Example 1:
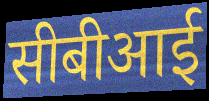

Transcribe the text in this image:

सीबीआई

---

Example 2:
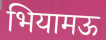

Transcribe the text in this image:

भियामऊ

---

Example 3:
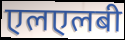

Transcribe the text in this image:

एलएलबी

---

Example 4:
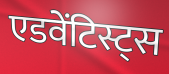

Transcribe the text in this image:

एडवेंटिस्ट्स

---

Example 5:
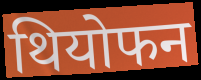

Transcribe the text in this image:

थियोफन